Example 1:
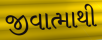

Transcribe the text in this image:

જીવાત્માથી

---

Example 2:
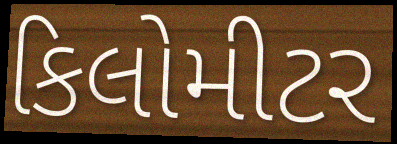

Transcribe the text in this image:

કિલોમીટર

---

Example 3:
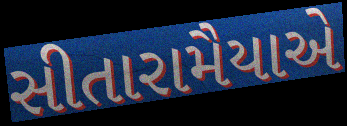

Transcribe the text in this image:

સીતારામૈયાએ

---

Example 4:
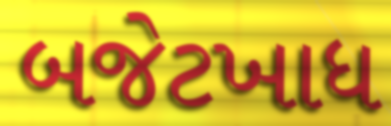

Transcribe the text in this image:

બજેટખાધ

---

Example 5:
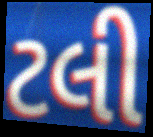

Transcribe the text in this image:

ટલી